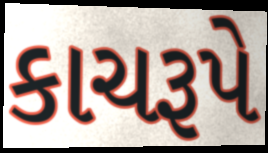
કાચરૂપે